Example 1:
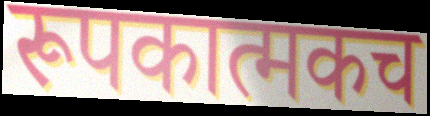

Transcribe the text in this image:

रूपकात्मकच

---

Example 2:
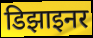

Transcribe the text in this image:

डिझाइनर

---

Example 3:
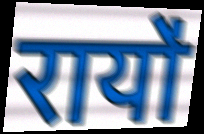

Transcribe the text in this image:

रायो॑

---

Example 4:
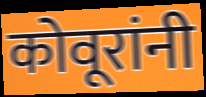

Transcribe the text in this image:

कोवूरांनी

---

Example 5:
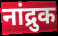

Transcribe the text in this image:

नांद्रुक